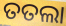
ତତଲା